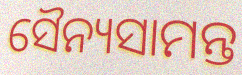
ସୈନ୍ୟସାମନ୍ତ